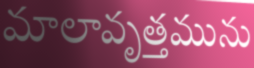
మాలావృత్తమును